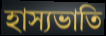
হাস্যভাতি